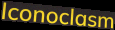
Iconoclasm